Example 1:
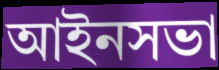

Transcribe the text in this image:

আইনসভা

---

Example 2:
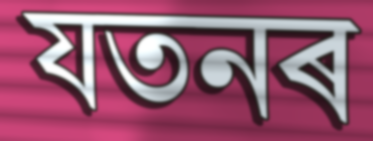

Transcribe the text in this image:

যতনৰ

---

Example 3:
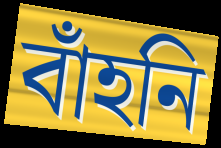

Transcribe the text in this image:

বাঁহনি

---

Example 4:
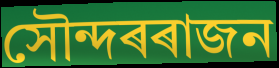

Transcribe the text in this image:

সৌন্দৰৰাজন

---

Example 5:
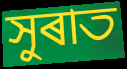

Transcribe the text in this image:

সুৰাত